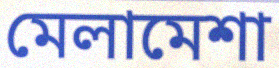
মেলামেশা